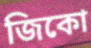
জিকো